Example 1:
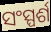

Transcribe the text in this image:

ସଂସ୍ପର୍ଶ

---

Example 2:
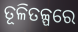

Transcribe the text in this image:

ତୂଳିତଳ୍ପରେ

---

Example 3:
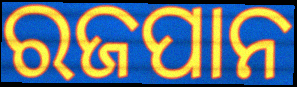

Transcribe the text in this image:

ରଜପାନ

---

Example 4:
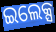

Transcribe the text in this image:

ଇଲେକ୍ସ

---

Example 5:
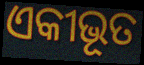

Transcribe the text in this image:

ଏକୀଭୂତ